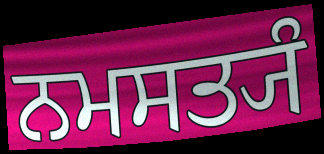
ਨਮਸਤ੍ਯੰ